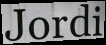
Jordi